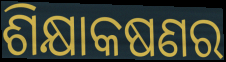
ଶିକ୍ଷାକଷଣର